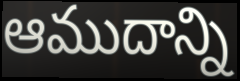
ఆముదాన్ని